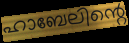
ഹാബേലിന്റെ